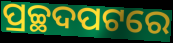
ପ୍ରଚ୍ଛଦପଟରେ